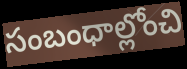
సంబంధాల్లోంచి